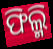
ଫିଲ୍ମି